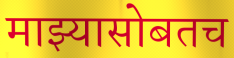
माझ्यासोबतच